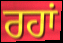
ਰਹਾਂ